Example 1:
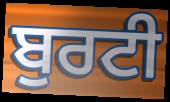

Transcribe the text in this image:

ਬੁਰਟੀ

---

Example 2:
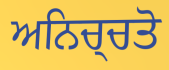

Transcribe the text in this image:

ਅਨਿਚ੍ਚਤੋ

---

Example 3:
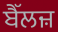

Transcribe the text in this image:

ਬੈੱਲਜ਼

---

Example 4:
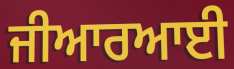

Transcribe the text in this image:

ਜੀਆਰਆਈ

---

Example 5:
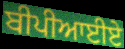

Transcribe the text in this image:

ਬੀਪੀਆਈਏ